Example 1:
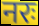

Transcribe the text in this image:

नरः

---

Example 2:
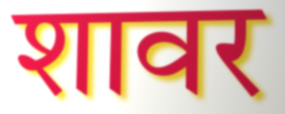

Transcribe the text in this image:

शावर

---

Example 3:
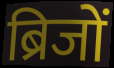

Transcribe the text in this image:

ब्रिजों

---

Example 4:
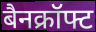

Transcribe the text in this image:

बैनक्रॉफ्ट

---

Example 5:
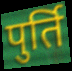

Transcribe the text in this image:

पुर्ति